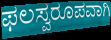
ಫಲಸ್ವರೂಪವಾಗಿ